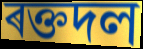
ৰক্তদল